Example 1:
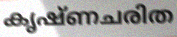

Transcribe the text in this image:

കൃഷ്ണചരിത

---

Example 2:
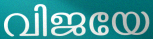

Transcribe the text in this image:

വിജയേ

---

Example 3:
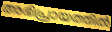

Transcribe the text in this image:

അഭിപ്രായത്തിൽ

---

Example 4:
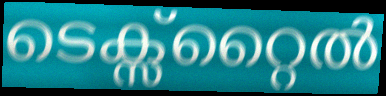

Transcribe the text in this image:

ടെക്സ്റ്റൈൽ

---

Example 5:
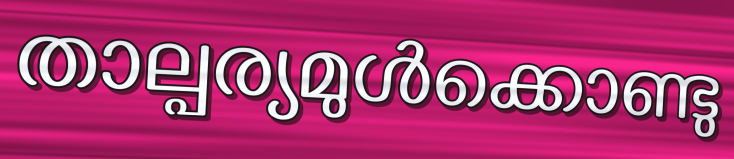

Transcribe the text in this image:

താല്പര്യമുൾക്കൊണ്ടു